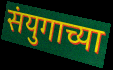
संयुगाच्या